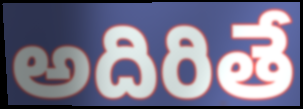
అదిరితే